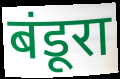
बंडूरा